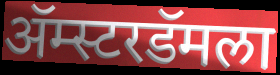
ॲम्स्टरडॅमला